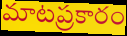
మాటప్రకారం